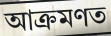
আক্ৰমণত